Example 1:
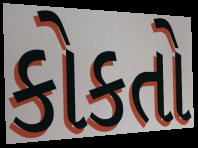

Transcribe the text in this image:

કોકતો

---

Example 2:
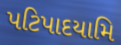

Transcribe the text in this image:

પટિપાદયામિ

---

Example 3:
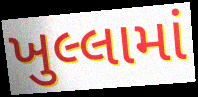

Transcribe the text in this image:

ખુલ્લામાં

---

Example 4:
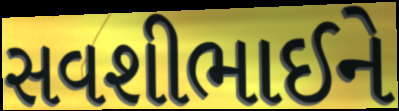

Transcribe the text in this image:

સવશીભાઈને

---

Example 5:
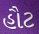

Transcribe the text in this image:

હૌટ